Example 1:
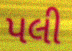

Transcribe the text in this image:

પલી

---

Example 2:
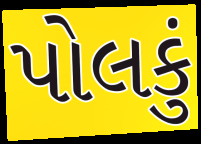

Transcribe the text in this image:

પોલકું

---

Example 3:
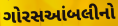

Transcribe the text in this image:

ગોરસઆંબલીનો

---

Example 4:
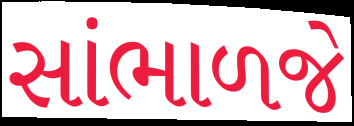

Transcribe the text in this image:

સાંભાળજે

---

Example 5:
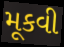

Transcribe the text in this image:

મૂકવી